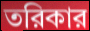
তরিকার